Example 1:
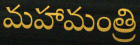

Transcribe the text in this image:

మహామంత్రి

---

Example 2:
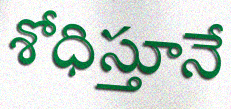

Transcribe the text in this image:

శోధిస్తూనే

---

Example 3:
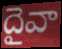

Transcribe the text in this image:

దైవా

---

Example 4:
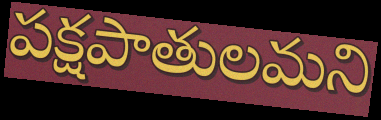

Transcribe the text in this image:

పక్షపాతులమని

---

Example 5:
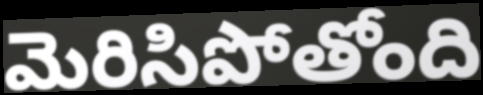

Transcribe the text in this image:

మెరిసిపోతోంది